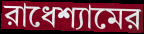
রাধেশ্যামের